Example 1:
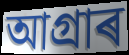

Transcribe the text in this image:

আগ্ৰাৰ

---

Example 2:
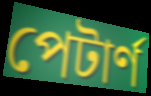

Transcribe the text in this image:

পেটাৰ্ণ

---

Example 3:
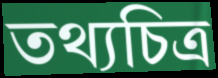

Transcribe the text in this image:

তথ্যচিত্ৰ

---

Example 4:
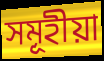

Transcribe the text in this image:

সমূহীয়া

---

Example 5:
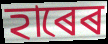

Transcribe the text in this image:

হাৰেৰ